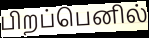
பிறப்பெனில்